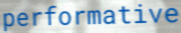
performative